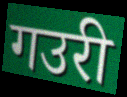
गउरी